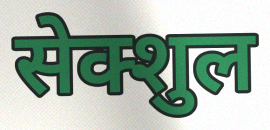
सेक्शुल